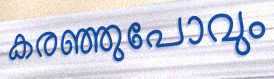
കരഞ്ഞുപോവും